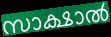
സാക്ഷാൽ